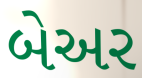
બેઅર